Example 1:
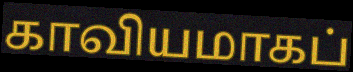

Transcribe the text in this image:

காவியமாகப்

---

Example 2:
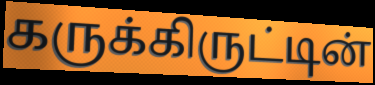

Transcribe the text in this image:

கருக்கிருட்டின்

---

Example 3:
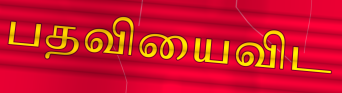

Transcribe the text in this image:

பதவியைவிட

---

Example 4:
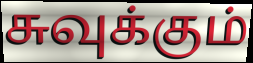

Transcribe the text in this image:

சுவுக்கும்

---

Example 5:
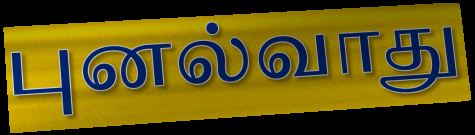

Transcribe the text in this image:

புனல்வாது